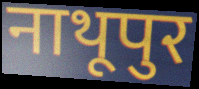
नाथूपुर